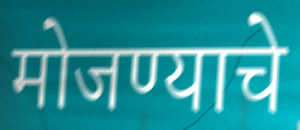
मोजण्याचे